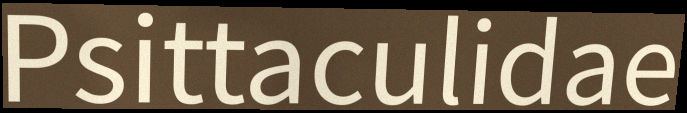
Psittaculidae